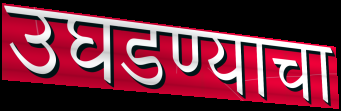
उघडण्याचा